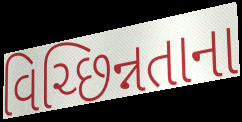
વિચ્છિન્નતાના